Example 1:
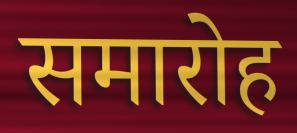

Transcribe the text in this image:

समारोह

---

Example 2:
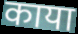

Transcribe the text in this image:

काया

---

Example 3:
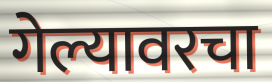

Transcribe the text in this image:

गेल्यावरचा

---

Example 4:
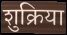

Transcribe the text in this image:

शुक्रिया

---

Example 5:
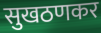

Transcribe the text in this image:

सुखठणकर